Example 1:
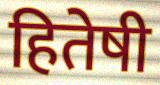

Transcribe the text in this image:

हितेषी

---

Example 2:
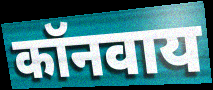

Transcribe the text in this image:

कॉनवाय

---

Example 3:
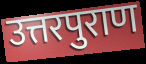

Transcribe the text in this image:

उत्तरपुराण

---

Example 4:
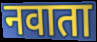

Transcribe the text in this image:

नवाता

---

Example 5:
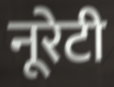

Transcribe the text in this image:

नूरेटी